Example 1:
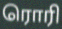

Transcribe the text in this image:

ரொரி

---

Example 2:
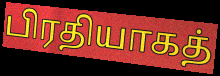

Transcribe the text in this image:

பிரதியாகத்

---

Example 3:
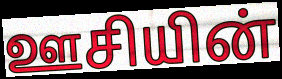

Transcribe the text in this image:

ஊசியின்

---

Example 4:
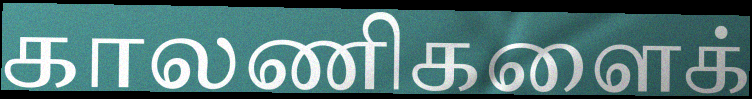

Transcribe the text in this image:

காலணிகளைக்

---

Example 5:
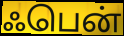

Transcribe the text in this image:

ஃபென்